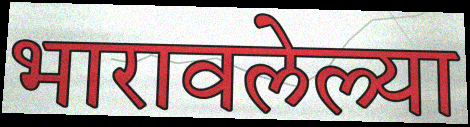
भारावलेल्या